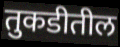
तुकडीतील